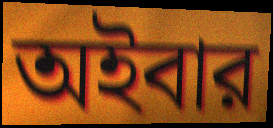
অইবার